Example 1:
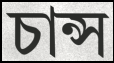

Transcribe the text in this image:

চান্স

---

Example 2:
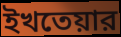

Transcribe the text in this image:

ইখতেয়ার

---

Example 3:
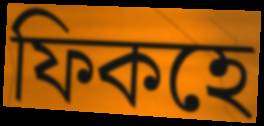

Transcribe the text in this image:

ফিকহে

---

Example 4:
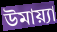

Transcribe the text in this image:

উমায়্যা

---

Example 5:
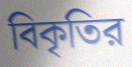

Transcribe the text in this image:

বিকৃতির